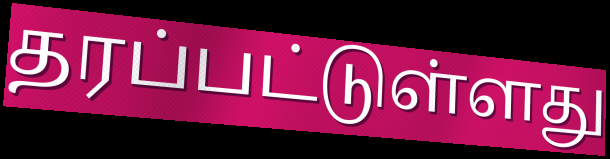
தரப்பட்டுள்ளது